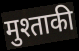
मुश्ताकी